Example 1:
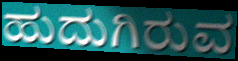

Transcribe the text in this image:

ಹುದುಗಿರುವ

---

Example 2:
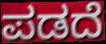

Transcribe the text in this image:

ಪಡದೆ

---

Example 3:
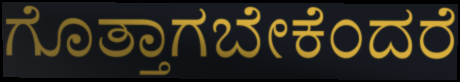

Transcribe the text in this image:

ಗೊತ್ತಾಗಬೇಕೆಂದರೆ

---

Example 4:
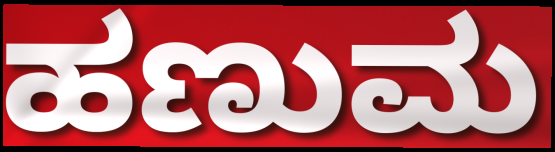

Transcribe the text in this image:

ಹಣುಮ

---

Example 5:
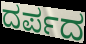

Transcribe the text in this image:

ದರ್ಪದ